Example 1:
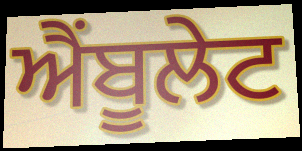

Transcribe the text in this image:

ਐਂਬੂਲੇਟ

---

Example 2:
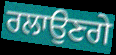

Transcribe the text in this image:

ਰਲਾਉਣਗੇ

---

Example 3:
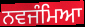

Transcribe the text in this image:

ਨਵਜੰਮਿਆ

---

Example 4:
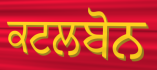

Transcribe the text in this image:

ਕਟਲਬੋਨ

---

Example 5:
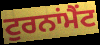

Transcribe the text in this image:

ਟੁਰਨਾਂਮੈਂਟ